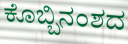
ಕೊಬ್ಬಿನಂಶದ